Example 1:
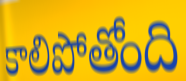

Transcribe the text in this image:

కాలిపోతోంది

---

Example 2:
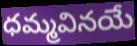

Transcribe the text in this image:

ధమ్మవినయే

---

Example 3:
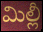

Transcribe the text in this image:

మిల్లీ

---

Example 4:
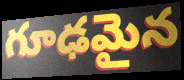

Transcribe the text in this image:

గూఢమైన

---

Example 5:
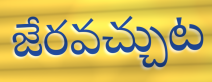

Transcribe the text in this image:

జేరవచ్చుట